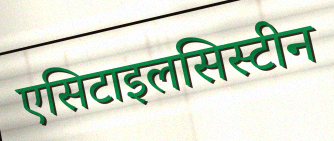
एसिटाइलसिस्टीन